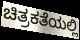
ಚಿತ್ರಕತೆಯಲ್ಲಿ